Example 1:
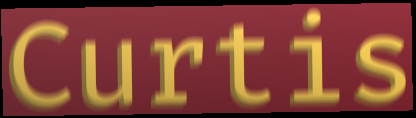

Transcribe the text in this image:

Curtis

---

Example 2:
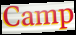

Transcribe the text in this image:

Camp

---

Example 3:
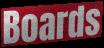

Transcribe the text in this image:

Boards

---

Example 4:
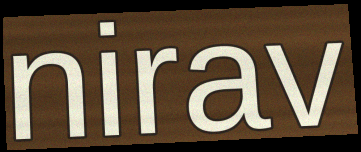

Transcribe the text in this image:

nirav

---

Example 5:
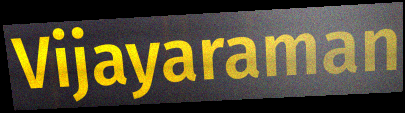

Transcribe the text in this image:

Vijayaraman